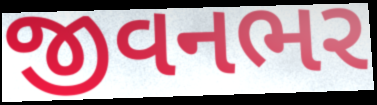
જીવનભર